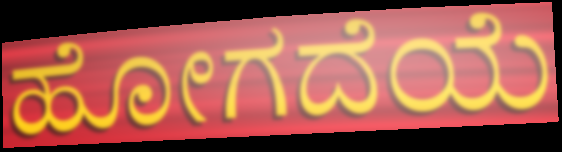
ಹೋಗದೆಯೆ